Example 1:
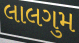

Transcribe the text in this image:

લાલગુમ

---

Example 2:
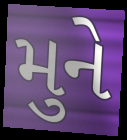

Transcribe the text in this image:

મુને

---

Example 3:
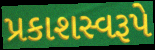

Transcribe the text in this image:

પ્રકાશસ્વરૂપે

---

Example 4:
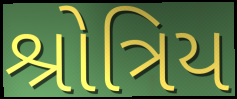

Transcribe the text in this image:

શ્રોત્રિય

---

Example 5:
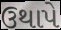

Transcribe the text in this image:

ઉથાપે